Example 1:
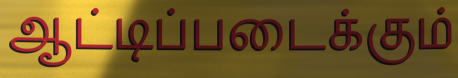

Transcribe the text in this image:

ஆட்டிப்படைக்கும்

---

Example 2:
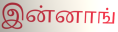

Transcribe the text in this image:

இன்னாங்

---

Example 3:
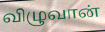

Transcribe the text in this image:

விழுவான்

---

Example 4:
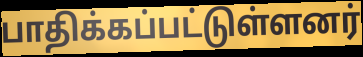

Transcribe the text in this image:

பாதிக்கப்பட்டுள்ளனர்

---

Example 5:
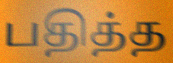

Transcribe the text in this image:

பதித்த